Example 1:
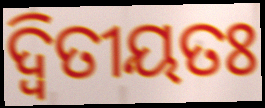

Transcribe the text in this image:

ଦ୍ବିତୀୟତଃ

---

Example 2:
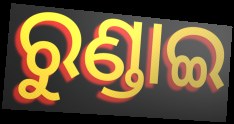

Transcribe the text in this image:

ରୁଣ୍ଡାଇ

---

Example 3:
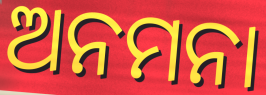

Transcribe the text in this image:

ଅନମନା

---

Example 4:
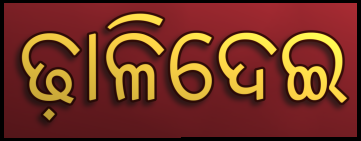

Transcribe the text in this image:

ଢ଼ାଳିଦେଇ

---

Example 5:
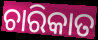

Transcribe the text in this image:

ଚାରିକାତ